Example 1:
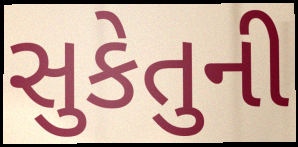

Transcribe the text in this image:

સુકેતુની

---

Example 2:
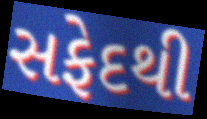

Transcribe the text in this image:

સફેદથી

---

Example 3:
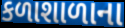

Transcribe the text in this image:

કળાશાળાના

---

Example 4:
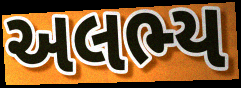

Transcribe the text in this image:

અલભ્ય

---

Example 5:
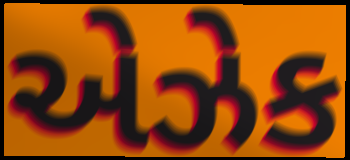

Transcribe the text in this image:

એઝેક